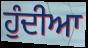
ਹੁੰਦੀਆ